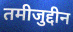
तमीजुद्दीन